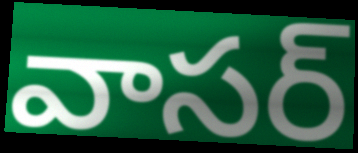
వాసర్